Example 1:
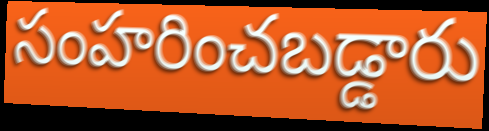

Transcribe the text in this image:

సంహరించబడ్డారు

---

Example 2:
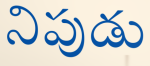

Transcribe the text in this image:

నిపుడు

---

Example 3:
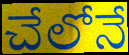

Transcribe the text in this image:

చేలోనే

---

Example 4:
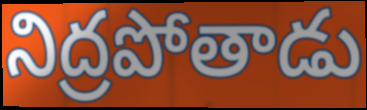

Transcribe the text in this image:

నిద్రపోతాడు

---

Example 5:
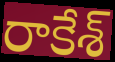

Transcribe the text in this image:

రాకేశ్